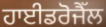
ਹਾਈਡਰੋਜੈੱਲ